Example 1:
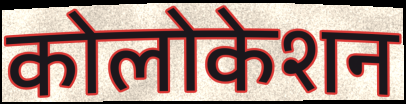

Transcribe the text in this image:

कोलोकेशन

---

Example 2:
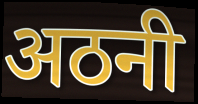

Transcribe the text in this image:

अठनी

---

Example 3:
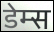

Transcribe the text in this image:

डेम्स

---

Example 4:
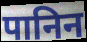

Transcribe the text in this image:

पानिन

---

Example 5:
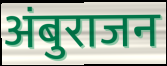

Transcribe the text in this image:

अंबुराजन